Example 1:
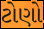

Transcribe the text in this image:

ટોણો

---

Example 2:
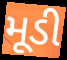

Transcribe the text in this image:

મૂડી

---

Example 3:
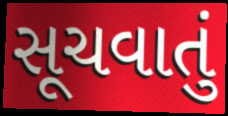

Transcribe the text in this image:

સૂચવાતું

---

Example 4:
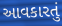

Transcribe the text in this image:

આવકારતું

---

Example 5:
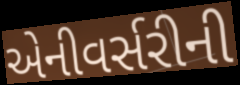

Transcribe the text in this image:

એનીવર્સરીની